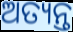
ଅତ୍ୟନ୍ତ